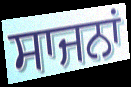
ਸਾਜਨਾਂ